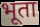
भूता